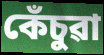
কেঁচুৱা